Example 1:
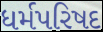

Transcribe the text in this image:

ધર્મપરિષદ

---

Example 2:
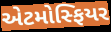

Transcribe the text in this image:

એટમોસ્ફિયર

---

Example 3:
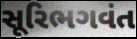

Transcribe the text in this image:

સૂરિભગવંત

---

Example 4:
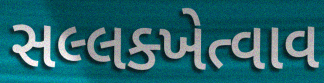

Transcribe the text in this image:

સલ્લક્ખેત્વાવ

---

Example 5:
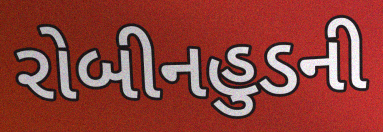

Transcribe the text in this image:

રોબીનહુડની